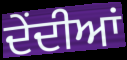
ਦੇਂਦੀਆਂ